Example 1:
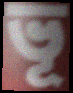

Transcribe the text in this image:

ভূ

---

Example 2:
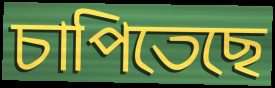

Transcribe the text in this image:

চাপিতেছে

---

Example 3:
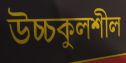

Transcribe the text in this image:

উচ্চকুলশীল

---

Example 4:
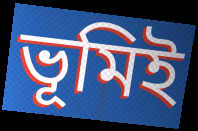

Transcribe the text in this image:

ভূমিই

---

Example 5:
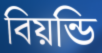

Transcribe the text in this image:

বিয়ন্ডি